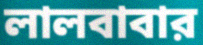
লালবাবার